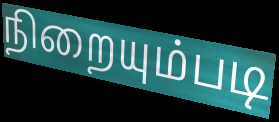
நிறையும்படி